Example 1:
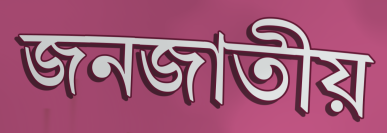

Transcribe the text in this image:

জনজাতীয়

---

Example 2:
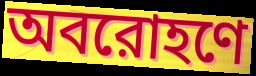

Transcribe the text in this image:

অবরোহণে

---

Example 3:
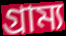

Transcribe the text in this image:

গ্রাম্য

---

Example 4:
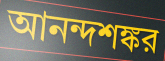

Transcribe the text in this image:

আনন্দশঙ্কর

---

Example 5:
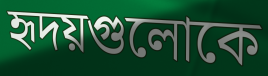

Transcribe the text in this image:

হৃদয়গুলোকে